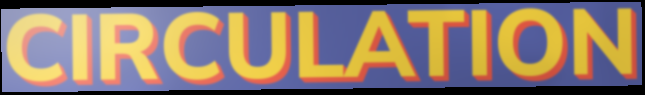
CIRCULATION